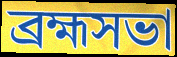
ব্রহ্মসভা